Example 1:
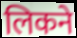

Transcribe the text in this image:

लिकने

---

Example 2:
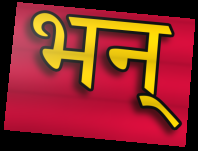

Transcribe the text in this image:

भन्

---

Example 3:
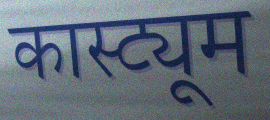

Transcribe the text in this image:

कास्ट्यूम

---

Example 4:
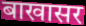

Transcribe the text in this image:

बाखासर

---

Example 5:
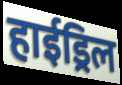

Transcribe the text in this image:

हाईड्रिल